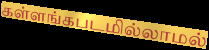
கள்ளங்கபடமில்லாமல்